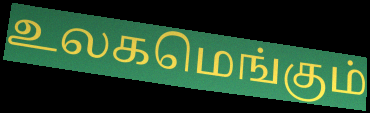
உலகமெங்கும்